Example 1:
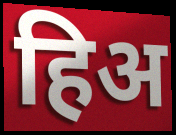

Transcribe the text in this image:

हिअ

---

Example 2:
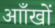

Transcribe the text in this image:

आाँखों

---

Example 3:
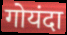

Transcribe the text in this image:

गोयंदा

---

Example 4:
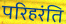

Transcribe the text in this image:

परिहरंति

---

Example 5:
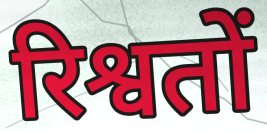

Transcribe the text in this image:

रिश्वतों